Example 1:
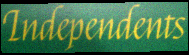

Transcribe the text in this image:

Independents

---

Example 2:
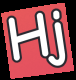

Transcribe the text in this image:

Hj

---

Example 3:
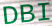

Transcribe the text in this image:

DBI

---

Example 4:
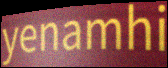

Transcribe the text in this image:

yenamhi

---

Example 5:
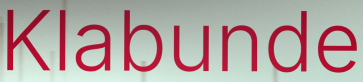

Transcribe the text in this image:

Klabunde